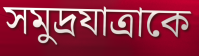
সমুদ্রযাত্রাকে